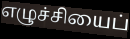
எழுச்சியைப்